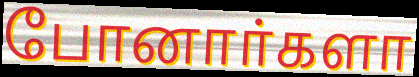
போனார்களா